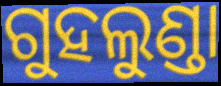
ଗୁହଲୁଣ୍ଡା